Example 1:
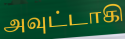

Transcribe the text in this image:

அவுட்டாகி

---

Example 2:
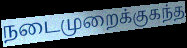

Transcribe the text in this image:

நடைமுறைக்குகந்த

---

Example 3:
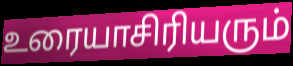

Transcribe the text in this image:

உரையாசிரியரும்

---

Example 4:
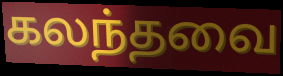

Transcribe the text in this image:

கலந்தவை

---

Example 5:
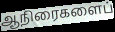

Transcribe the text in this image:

ஆநிரைகளைப்